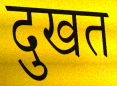
दुखत